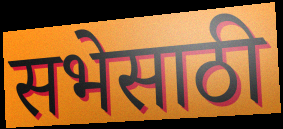
सभेसाठी